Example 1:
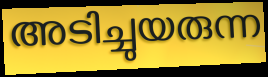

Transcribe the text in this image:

അടിച്ചുയരുന്ന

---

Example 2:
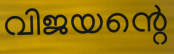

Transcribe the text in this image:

വിജയന്റെ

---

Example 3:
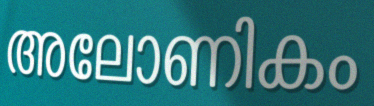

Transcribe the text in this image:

അലോണികം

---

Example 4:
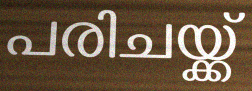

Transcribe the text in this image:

പരിചയ്ക്ക്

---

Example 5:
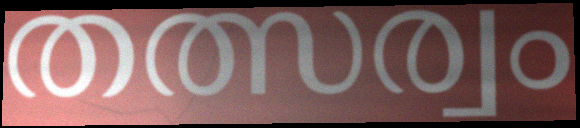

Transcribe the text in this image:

തത്സര്വം